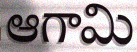
ఆగామి